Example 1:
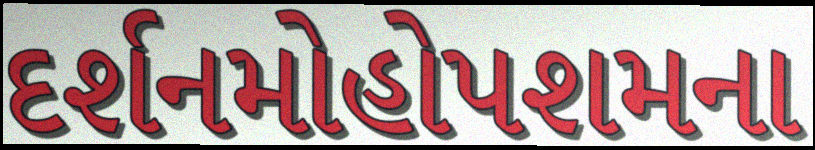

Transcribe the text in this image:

દર્શનમોહોપશમના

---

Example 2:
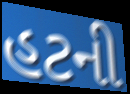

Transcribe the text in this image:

હટની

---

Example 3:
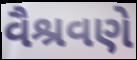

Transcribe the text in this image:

વૈશ્રવણે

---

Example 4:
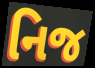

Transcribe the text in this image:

નિજ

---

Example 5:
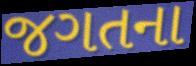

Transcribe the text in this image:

જગતના